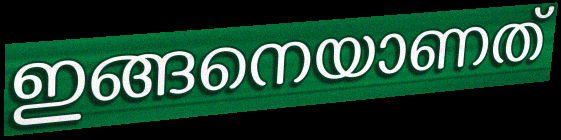
ഇങ്ങനെയാണത്